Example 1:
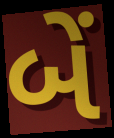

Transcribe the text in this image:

બેં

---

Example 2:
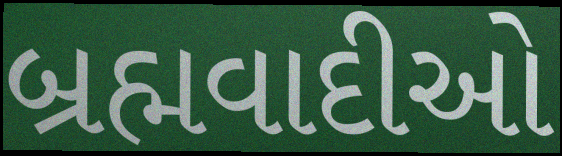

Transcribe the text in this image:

બ્રહ્મવાદીઓ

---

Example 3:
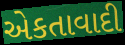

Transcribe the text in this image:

એકતાવાદી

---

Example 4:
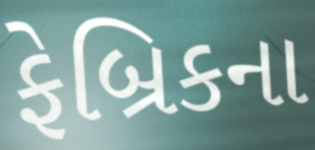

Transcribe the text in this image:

ફેબ્રિકના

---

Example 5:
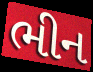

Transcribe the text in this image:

ભીન